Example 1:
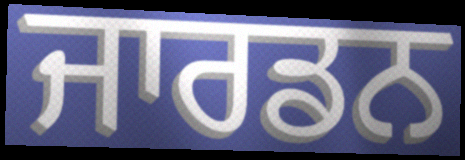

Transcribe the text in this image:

ਜਾਰਡਨ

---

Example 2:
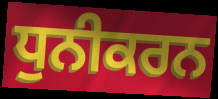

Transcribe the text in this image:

ਧੁਨੀਕਰਨ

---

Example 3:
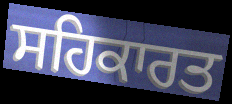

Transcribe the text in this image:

ਸਹਿਕਾਰਤ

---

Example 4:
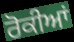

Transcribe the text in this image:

ਰੋਕੀਆਂ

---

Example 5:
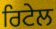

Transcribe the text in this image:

ਰਿਟੇਲ